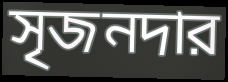
সৃজনদার